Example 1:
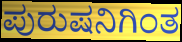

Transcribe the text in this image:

ಪುರುಷನಿಗಿಂತ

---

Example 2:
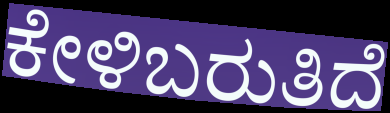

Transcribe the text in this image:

ಕೇಳಿಬರುತಿದೆ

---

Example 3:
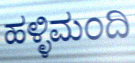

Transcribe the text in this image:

ಹಳ್ಳಿಮಂದಿ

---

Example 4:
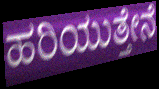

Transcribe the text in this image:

ಹರಿಯುತ್ತೇನೆ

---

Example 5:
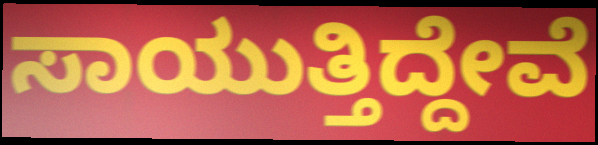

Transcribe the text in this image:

ಸಾಯುತ್ತಿದ್ದೇವೆ